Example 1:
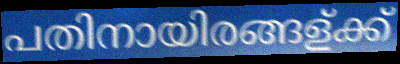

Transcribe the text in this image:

പതിനായിരങ്ങള്ക്ക്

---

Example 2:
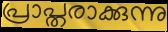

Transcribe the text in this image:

പ്രാപ്തരാക്കുന്നു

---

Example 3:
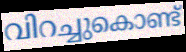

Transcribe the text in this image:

വിറച്ചുകൊണ്ട്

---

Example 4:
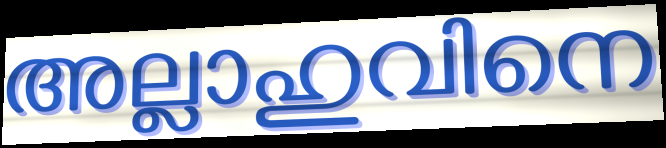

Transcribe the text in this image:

അല്ലാഹുവിനെ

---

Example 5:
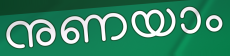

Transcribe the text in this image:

നുണയാം